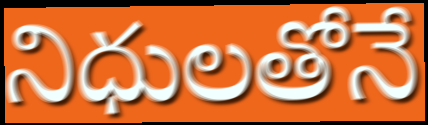
నిధులతోనే